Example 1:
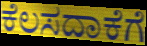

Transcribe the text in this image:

ಕೆಲಸದಾಕೆಗೆ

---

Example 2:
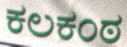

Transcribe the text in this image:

ಕಲಕಂಠ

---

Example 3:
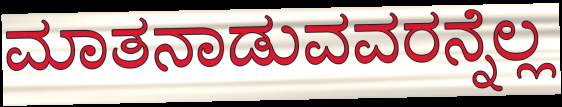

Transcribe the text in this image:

ಮಾತನಾಡುವವರನ್ನೆಲ್ಲ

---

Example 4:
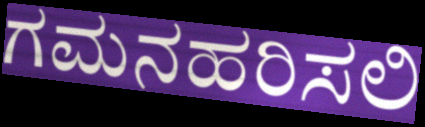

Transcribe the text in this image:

ಗಮನಹರಿಸಲಿ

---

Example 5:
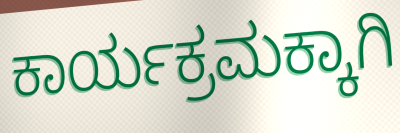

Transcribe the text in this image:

ಕಾರ್ಯಕ್ರಮಕ್ಕಾಗಿ